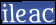
ileac